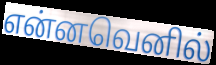
என்னவெனில்